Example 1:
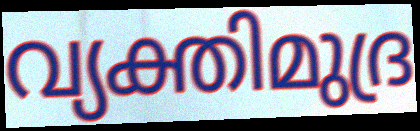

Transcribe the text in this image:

വ്യക്തിമുദ്ര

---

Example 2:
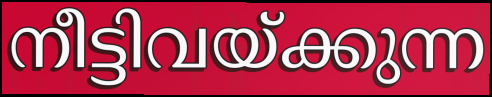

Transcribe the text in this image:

നീട്ടിവയ്ക്കുന്ന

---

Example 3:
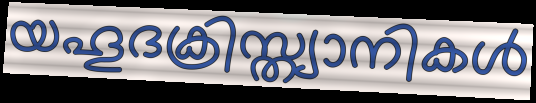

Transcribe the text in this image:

യഹൂദക്രിസ്ത്യാനികൾ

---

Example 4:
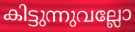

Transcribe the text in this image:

കിട്ടുന്നുവല്ലോ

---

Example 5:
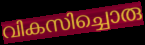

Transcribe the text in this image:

വികസിച്ചൊരു